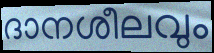
ദാനശീലവും